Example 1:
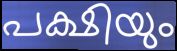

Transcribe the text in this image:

പക്ഷിയും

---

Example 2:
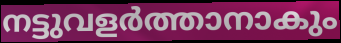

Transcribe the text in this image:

നട്ടുവളർത്താനാകും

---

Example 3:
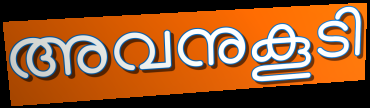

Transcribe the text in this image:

അവനുകൂടി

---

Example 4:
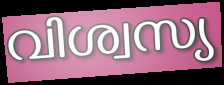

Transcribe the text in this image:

വിശ്വസ്യ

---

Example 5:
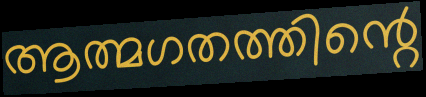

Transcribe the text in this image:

ആത്മഗതത്തിന്റെ